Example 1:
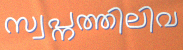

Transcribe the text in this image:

സ്വപ്നത്തിലിവ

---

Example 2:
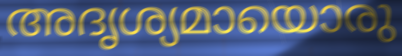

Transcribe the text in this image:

അദൃശ്യമായൊരു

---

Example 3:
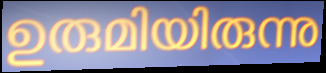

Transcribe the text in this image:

ഉരുമിയിരുന്നു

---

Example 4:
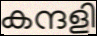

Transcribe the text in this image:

കന്ദളി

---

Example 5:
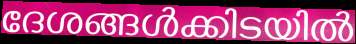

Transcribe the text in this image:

ദേശങ്ങൾക്കിടയിൽ